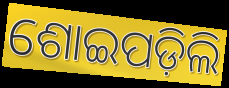
ଶୋଇପଡ଼ିଲି